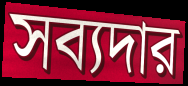
সব্যদার